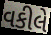
વકીલે